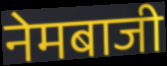
नेमबाजी